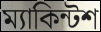
ম্যাকিন্টশ